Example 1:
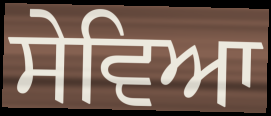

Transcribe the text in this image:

ਸੇਵਿਆ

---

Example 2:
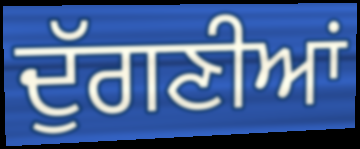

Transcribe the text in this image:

ਦੁੱਗਣੀਆਂ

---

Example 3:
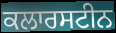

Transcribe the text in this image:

ਕਲਾਰਸਟੀਨ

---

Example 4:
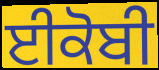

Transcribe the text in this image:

ਈਕੋਬੀ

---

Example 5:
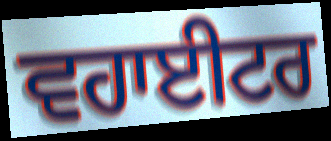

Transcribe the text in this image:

ਵਹਾਈਟਰ